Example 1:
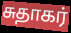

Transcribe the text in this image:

சுதாகர்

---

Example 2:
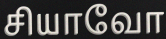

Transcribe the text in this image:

சியாவோ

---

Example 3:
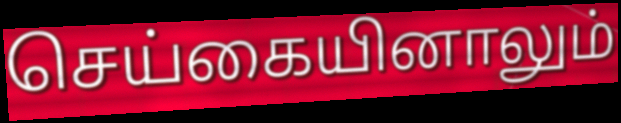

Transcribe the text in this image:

செய்கையினாலும்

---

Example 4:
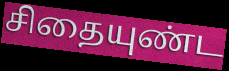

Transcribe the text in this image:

சிதையுண்ட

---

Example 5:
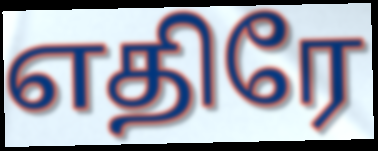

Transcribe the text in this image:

எதிரே